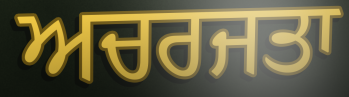
ਅਚਰਜਤਾ